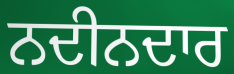
ਨਦੀਨਦਾਰ